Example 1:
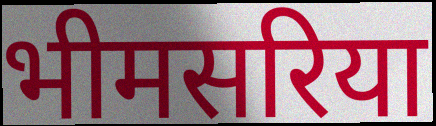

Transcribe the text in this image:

भीमसरिया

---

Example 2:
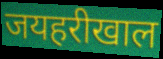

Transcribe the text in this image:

जयहरीखाल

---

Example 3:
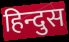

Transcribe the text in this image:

हिन्दुस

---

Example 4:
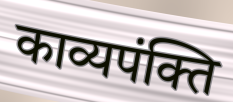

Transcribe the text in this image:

काव्यपंक्ति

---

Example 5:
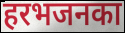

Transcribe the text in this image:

हरभजनका